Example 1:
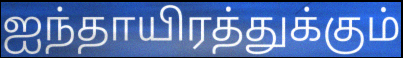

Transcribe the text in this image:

ஐந்தாயிரத்துக்கும்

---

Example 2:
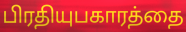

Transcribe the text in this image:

பிரதியுபகாரத்தை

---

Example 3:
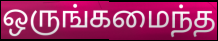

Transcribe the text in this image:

ஒருங்கமைந்த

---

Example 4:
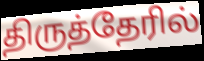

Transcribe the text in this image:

திருத்தேரில்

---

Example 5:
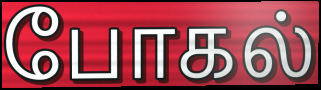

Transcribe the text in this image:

போகல்